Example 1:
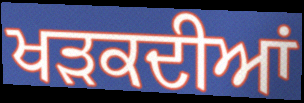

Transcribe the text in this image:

ਖੜਕਦੀਆਂ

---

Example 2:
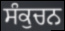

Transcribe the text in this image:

ਸੰਕੁਚਨ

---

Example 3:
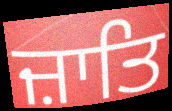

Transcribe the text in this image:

ਜ਼ਾਤਿ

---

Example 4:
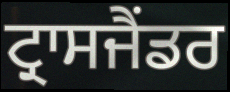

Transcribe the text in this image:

ਟ੍ਰਾਸਜੈਂਡਰ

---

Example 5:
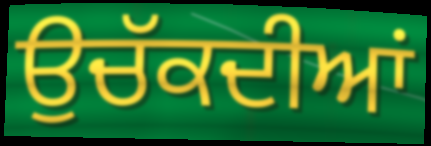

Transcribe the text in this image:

ਉਚੱਕਦੀਆਂ